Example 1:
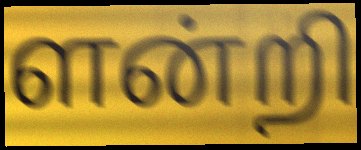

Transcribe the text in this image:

ளன்றி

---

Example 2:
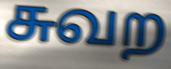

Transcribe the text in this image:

சுவற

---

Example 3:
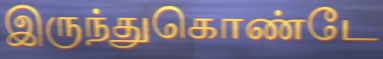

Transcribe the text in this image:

இருந்துகொண்டே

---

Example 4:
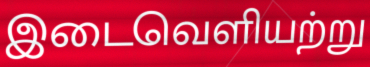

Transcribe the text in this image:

இடைவெளியற்று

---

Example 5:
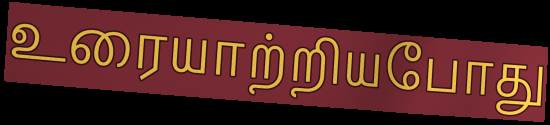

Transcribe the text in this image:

உரையாற்றியபோது